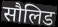
सौलिड